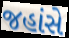
જહાંસે